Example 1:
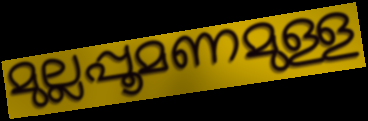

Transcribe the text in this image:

മുല്ലപ്പൂമണമുള്ള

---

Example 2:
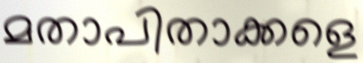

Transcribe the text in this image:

മതാപിതാക്കളെ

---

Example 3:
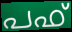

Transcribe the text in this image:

പഫ്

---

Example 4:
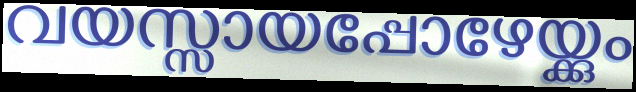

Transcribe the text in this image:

വയസ്സായപ്പോഴേയ്ക്കും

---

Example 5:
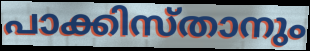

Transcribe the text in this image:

പാക്കിസ്താനും